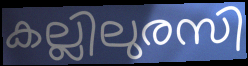
കല്ലിലുരസി